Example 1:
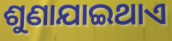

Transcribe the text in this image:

ଶୁଣାଯାଇଥାଏ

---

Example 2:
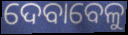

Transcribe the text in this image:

ଦେବାବେଳୁ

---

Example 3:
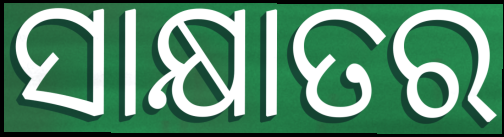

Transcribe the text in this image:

ସାକ୍ଷାତର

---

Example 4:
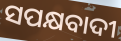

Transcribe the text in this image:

ସପକ୍ଷବାଦୀ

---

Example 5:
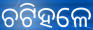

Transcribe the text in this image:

ଚଟିହଳେ